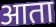
आता